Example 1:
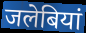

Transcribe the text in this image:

जलेबियां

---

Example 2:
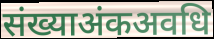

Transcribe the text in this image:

संख्याअंकअवधि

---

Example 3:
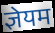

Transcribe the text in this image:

ज्ञेयम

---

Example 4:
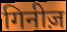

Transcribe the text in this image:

गिनीज़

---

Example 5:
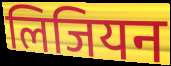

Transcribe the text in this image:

लिजियन